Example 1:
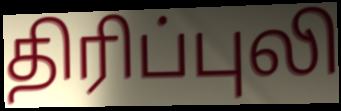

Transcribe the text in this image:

திரிப்புலி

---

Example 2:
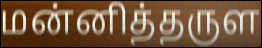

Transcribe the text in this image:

மன்னித்தருள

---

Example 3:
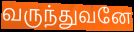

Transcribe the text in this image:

வருந்துவனே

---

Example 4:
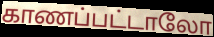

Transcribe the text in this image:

காணப்பட்டாலோ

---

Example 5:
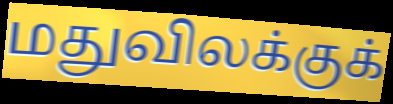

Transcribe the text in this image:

மதுவிலக்குக்